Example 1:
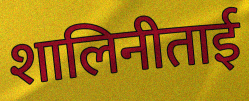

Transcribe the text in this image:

शालिनीताई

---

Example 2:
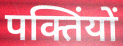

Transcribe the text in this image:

पक्तिंयों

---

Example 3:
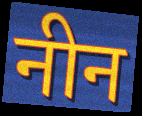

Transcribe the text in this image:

नीन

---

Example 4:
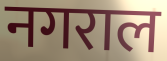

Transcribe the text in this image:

नगराल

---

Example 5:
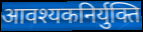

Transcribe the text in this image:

आवश्यकनिर्युक्ति